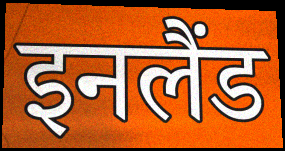
इनलैंड